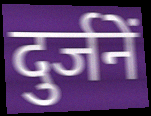
दुर्जनें